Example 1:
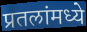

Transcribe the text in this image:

प्रतलांमध्ये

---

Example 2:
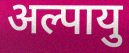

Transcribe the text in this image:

अल्पायु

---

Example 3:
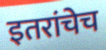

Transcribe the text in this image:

इतरांचेच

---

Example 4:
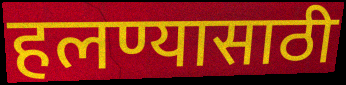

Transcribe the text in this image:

हलण्यासाठी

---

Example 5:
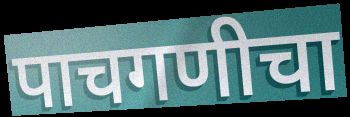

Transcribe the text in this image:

पाचगणीचा